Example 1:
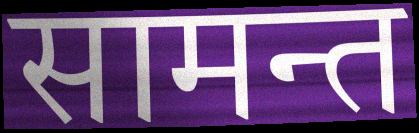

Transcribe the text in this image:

सामन्त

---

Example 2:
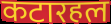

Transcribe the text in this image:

कटारहल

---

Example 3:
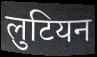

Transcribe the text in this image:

लुटियन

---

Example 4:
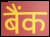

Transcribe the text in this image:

बैंक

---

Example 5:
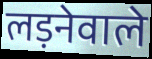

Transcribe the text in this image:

लड़नेवाले